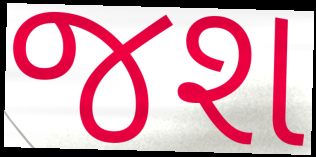
જશ